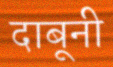
दाबूनी